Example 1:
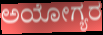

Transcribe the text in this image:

ಅಯೋಗ್ಯರ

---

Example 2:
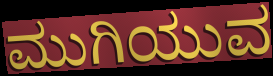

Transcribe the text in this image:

ಮುಗಿಯುವ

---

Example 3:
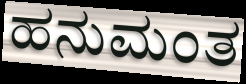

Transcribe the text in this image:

ಹನುಮಂತ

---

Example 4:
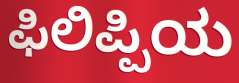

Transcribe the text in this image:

ಫಿಲಿಪ್ಪಿಯ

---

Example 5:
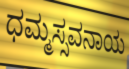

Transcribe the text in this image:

ಧಮ್ಮಸ್ಸವನಾಯ